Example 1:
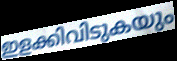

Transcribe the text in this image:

ഇളക്കിവിടുകയും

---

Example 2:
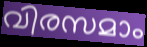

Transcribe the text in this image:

വിരസമാം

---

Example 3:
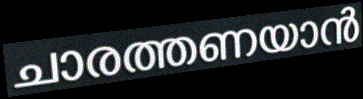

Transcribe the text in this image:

ചാരത്തണയാൻ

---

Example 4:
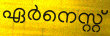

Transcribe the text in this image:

ഏർനെസ്റ്റ്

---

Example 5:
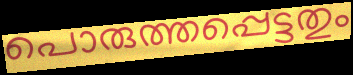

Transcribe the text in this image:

പൊരുത്തപ്പെട്ടതും